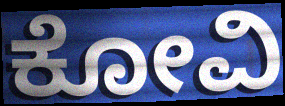
ಕೋವಿ